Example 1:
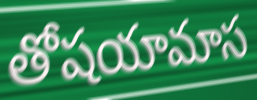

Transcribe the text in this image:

తోషయామాస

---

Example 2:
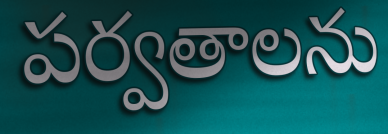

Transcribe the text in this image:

పర్వతాలను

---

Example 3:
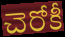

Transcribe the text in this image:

చెరోకీ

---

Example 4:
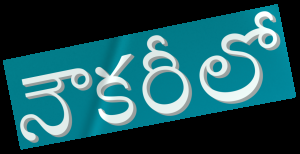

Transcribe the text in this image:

నౌకరీలో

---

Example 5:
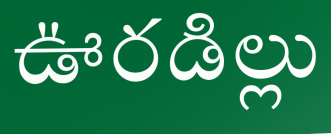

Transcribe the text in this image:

ఊరడిల్లు